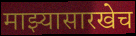
माझ्यासारखेच